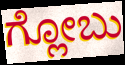
ಗ್ಲೋಬು